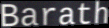
Barath